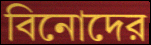
বিনোদের